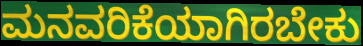
ಮನವರಿಕೆಯಾಗಿರಬೇಕು